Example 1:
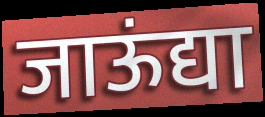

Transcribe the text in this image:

जाऊंद्या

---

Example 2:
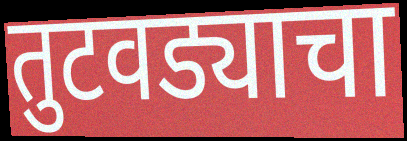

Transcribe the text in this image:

तुटवड्याचा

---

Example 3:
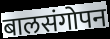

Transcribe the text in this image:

बालसंगोपन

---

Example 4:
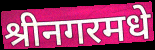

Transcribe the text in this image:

श्रीनगरमधे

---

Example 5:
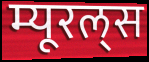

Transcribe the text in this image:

म्यूरल्स